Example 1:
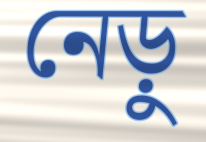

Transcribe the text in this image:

নেড়ু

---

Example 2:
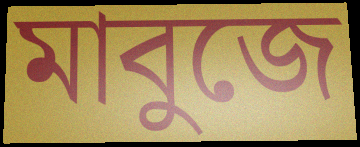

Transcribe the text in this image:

মাবুজে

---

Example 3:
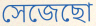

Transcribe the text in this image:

সেজেছো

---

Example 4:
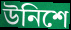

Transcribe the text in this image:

উনিশে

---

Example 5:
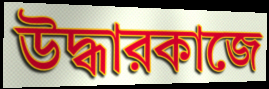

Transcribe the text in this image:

উদ্ধারকাজে